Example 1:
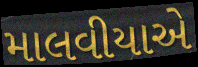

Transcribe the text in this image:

માલવીયાએ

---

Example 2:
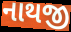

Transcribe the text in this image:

નાથજી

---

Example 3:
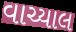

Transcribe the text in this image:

વાચ્યાલ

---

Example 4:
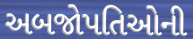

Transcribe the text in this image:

અબજોપતિઓની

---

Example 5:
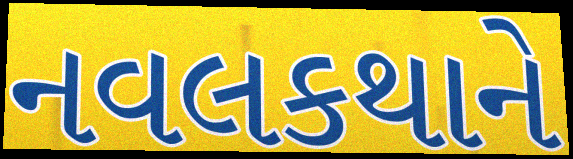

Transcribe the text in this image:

નવલકથાને